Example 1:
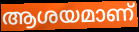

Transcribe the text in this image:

ആശയമാണ്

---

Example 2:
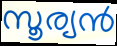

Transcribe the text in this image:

സൂര്യൻ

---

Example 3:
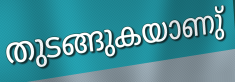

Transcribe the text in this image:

തുടങ്ങുകയാണു്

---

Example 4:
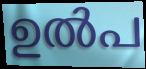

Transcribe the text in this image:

ഉൽപ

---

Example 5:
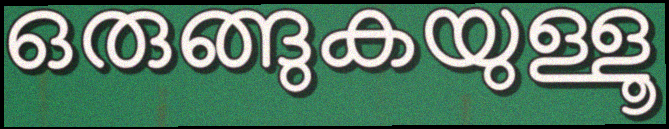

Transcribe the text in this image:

ഒരുങ്ങുകയുള്ളൂ